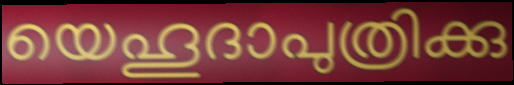
യെഹൂദാപുത്രിക്കു